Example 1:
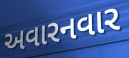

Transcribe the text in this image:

અવારનવાર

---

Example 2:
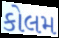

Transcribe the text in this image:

કોલમ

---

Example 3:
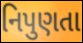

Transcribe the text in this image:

નિપુણતા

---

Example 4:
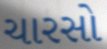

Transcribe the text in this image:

ચારસો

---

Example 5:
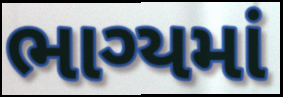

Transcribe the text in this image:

ભાગ્યમાં